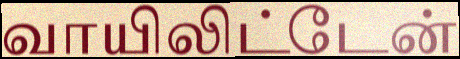
வாயிலிட்டேன்